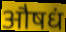
औषधं